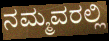
ನಮ್ಮವರಲ್ಲಿ